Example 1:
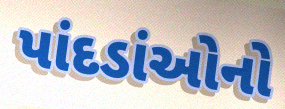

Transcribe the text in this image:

પાંદડાંઓનો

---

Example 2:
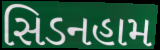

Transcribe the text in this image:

સિડનહામ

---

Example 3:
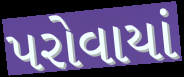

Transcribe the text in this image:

પરોવાયાં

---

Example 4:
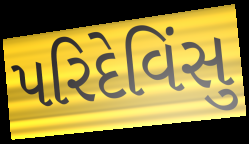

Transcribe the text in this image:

પરિદેવિંસુ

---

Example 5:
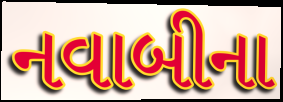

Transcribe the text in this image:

નવાબીના